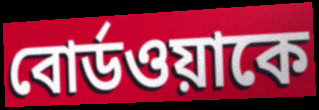
বোর্ডওয়াকে